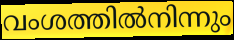
വംശത്തിൽനിന്നും